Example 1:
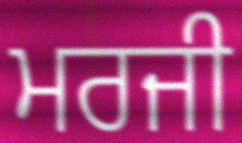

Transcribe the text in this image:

ਮਰਜੀ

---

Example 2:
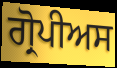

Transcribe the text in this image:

ਗ੍ਰੋਪੀਅਸ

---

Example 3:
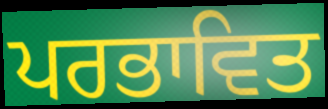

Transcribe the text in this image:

ਪਰਭਾਵਿਤ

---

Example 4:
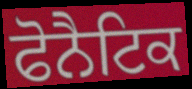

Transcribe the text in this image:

ਫੋਨੈਟਿਕ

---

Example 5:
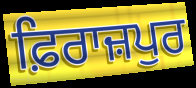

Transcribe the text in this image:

ਫ਼ਿਰਾਜ਼ਪੁਰ